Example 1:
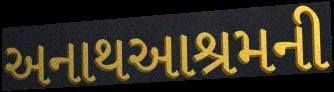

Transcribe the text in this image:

અનાથઆશ્રમની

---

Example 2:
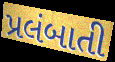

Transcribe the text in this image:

પ્રલંબાતી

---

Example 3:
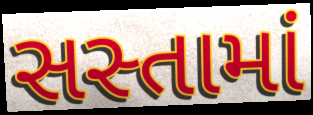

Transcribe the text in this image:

સસ્તામાં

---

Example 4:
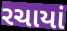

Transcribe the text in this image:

રચાયાં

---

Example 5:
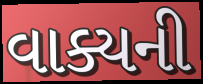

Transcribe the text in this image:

વાક્યની